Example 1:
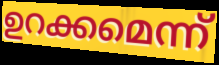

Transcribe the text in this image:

ഉറക്കമെന്ന്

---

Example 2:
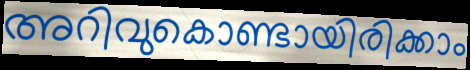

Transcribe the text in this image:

അറിവുകൊണ്ടായിരിക്കാം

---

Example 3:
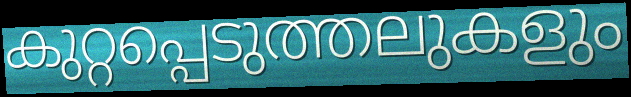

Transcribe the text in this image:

കുറ്റപ്പെടുത്തലുകളും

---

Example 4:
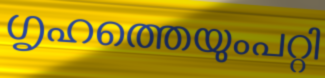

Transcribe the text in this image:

ഗൃഹത്തെയുംപറ്റി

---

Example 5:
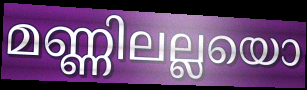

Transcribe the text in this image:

മണ്ണിലല്ലയൊ